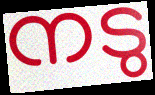
നടു